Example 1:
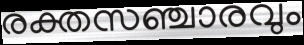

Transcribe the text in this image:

രക്തസഞ്ചാരവും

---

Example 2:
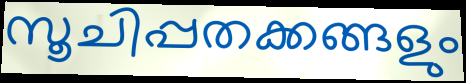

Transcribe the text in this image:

സൂചിപ്പതക്കങ്ങളും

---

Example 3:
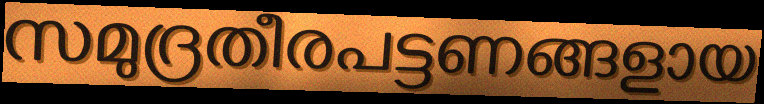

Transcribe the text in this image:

സമുദ്രതീരപട്ടണങ്ങളായ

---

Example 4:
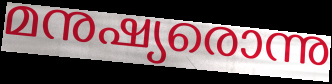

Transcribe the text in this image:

മനുഷ്യരൊന്നു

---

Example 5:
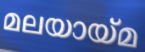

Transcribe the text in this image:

മലയായ്മ